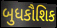
બુધકૌશિક